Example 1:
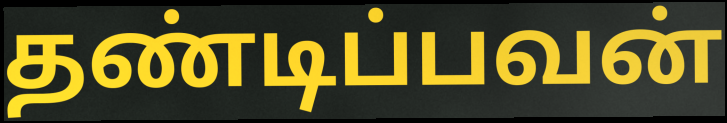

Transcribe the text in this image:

தண்டிப்பவன்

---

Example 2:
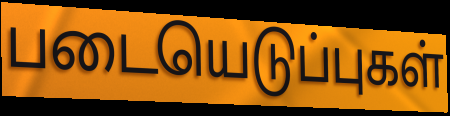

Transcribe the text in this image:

படையெடுப்புகள்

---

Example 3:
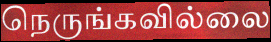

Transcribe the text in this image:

நெருங்கவில்லை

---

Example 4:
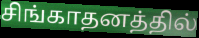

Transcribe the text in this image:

சிங்காதனத்தில்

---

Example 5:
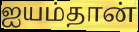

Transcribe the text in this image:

ஐயம்தான்